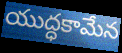
యుద్ధకామేన